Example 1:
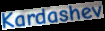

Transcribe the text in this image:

Kardashev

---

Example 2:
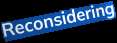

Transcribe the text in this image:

Reconsidering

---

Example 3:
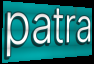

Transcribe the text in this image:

patra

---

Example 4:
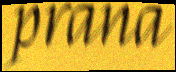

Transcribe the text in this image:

prana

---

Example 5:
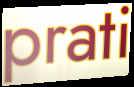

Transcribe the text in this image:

prati